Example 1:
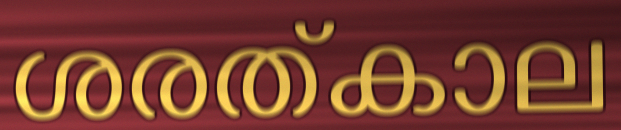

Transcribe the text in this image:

ശരത്കാല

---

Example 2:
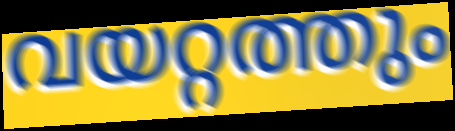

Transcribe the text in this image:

വയറ്റത്തും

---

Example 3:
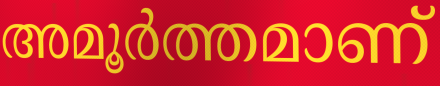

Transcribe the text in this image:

അമൂർത്തമാണ്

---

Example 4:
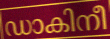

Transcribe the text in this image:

ഡാകിനീ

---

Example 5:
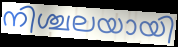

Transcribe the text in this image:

നിശ്ചലയായി